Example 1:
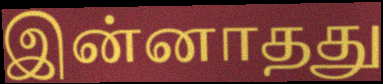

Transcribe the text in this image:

இன்னாதது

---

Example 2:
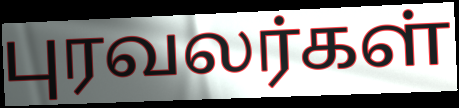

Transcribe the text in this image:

புரவலர்கள்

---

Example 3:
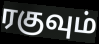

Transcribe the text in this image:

ரகுவும்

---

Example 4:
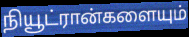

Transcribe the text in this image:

நியூட்ரான்களையும்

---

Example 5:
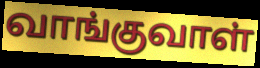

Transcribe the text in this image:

வாங்குவாள்